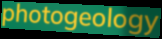
photogeology